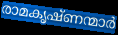
രാമകൃഷ്ണന്മാർ